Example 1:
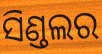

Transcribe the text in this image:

ସିଣ୍ଡଲର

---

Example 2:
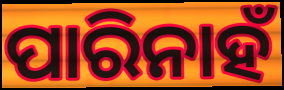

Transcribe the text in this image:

ପାରିନାହଁ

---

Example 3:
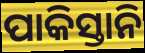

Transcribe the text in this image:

ପାକିସ୍ତାନି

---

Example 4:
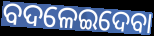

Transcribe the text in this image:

ବଦଳେଇଦେବା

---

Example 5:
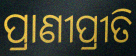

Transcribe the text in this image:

ପ୍ରାଣୀପ୍ରୀତି